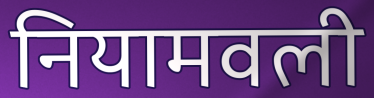
नियामवली